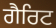
ਗੈਰਿਟ